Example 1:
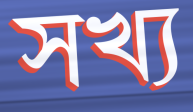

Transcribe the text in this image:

সখ্য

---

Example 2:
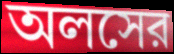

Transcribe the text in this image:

অলসের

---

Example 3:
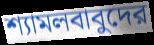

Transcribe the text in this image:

শ্যামলবাবুদের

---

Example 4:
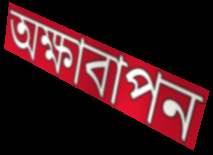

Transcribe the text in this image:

অক্ষাবাপন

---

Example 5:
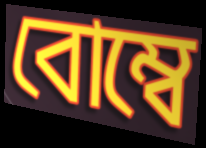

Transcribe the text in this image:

বোম্বে